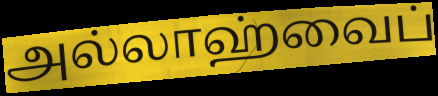
அல்லாஹ்வைப்